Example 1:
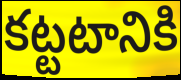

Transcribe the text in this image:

కట్టటానికి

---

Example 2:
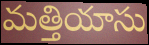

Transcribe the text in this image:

మత్తియాసు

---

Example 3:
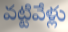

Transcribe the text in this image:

వట్టివేళ్లు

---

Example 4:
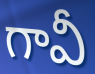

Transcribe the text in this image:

గావీ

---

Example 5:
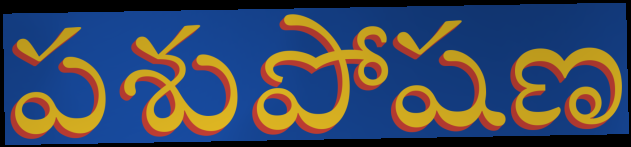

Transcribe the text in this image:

పశుపోషణ